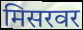
मिसरवर